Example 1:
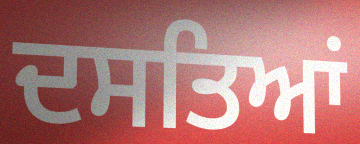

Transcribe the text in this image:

ਦਸਤਿਆਂ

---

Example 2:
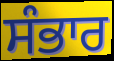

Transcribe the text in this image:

ਸੰਭਾਰ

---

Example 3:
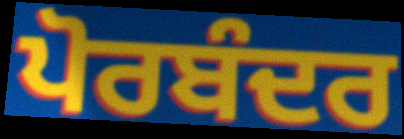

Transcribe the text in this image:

ਪੋਰਬੰਦਰ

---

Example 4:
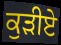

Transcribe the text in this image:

ਕੁੜੀਏ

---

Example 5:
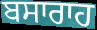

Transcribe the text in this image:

ਬਸਾਰਾਹ